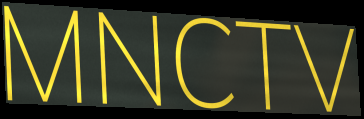
MNCTV